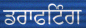
ਡਰਾਫਟਿੰਗ